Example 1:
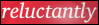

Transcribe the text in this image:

reluctantly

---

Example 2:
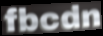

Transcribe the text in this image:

fbcdn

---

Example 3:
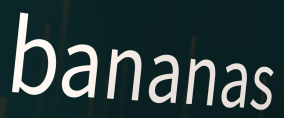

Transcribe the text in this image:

bananas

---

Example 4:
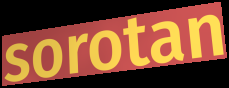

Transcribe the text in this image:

sorotan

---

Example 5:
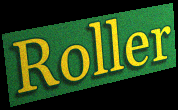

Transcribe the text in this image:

Roller